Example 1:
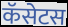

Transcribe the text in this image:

कॅसेटस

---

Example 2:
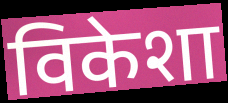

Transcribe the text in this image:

विकेशा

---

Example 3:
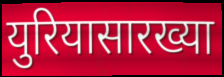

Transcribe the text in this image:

युरियासारख्या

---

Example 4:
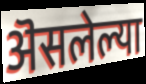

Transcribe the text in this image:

ऄसलेल्या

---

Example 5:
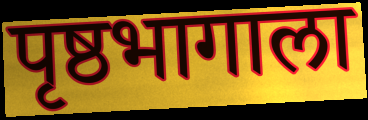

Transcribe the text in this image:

पृष्ठभागाला